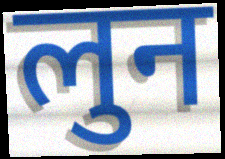
लुन